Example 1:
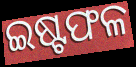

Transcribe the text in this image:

ଇଷ୍ଟଫଳ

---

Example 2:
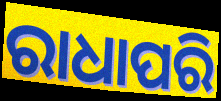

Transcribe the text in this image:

ରାଧାପରି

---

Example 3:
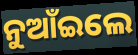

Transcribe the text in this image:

ନୁଆଁଇଲେ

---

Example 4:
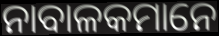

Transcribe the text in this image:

ନାବାଳକମାନେ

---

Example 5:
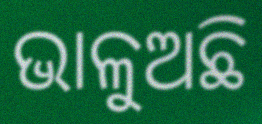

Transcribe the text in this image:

ଭାଳୁଅଛି